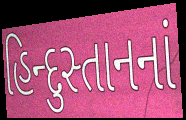
હિન્દુસ્તાનનાં